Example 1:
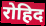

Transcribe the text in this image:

रोहिद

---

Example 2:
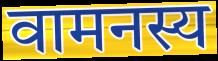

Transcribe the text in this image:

वामनस्य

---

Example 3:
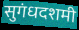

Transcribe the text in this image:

सुगंधदशमी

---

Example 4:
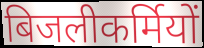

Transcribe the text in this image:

बिजलीकर्मियों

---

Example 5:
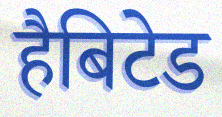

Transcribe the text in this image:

हैबिटेड